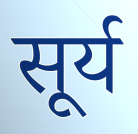
सूर्य